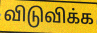
விடுவிக்க